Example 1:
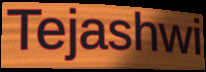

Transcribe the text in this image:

Tejashwi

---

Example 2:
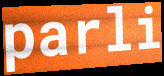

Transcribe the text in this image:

parli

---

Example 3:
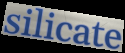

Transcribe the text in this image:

silicate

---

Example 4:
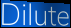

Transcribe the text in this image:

Dilute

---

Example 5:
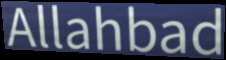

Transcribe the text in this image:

Allahbad